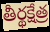
తీర్థక్షేత్ర